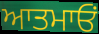
ਆਤਮਾਓਂ